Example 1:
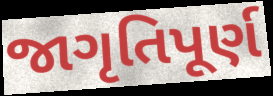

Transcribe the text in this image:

જાગૃતિપૂર્ણ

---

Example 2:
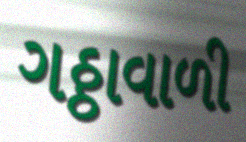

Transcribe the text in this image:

ગઠ્ઠાવાળી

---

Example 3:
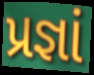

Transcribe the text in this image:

પ્રજ્ઞાં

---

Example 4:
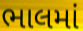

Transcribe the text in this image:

ભાલમાં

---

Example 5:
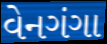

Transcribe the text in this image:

વેનગંગા